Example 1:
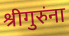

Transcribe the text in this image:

श्रीगुरुंना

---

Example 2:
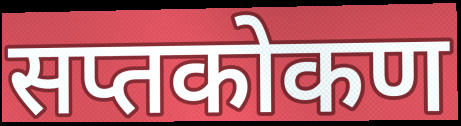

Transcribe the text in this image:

सप्तकोकण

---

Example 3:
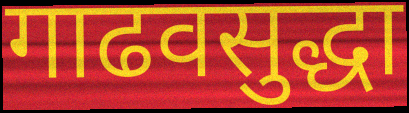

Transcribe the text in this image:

गाढवसुद्धा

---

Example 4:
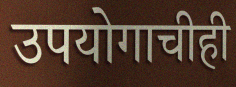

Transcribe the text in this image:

उपयोगाचीही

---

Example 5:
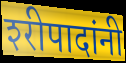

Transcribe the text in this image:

श्रीपादांनी